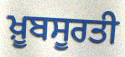
ਖ਼ੂਬਸੂਰਤੀ